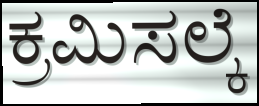
ಕ್ರಮಿಸಲ್ಕೆ